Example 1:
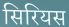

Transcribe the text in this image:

सिरियस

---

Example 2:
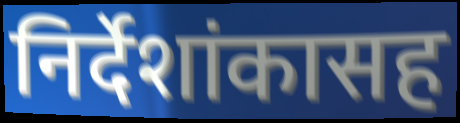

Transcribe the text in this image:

निर्देशांकासह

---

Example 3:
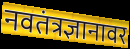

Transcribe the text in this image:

नवतंत्रज्ञानावर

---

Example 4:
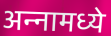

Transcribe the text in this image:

अन्नामध्ये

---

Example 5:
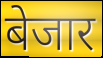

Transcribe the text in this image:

बेजार